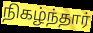
நிகழ்ந்தார்